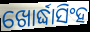
ଖୋର୍ଦ୍ଧାସିଂହ